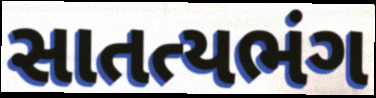
સાતત્યભંગ